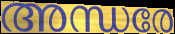
അന്ധരേ